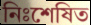
নিঃশেষিত